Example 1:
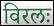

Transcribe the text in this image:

विरलः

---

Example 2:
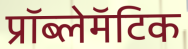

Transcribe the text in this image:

प्रॉब्लेमॅटिक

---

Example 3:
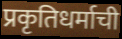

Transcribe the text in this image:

प्रकृतिधर्माची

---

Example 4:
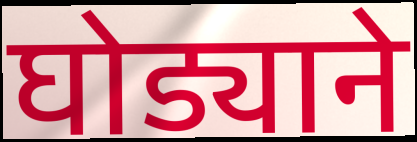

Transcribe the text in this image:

घोड्याने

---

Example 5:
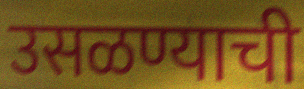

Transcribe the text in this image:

उसळण्याची